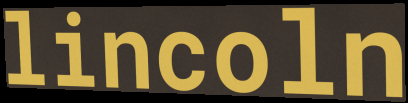
lincoln